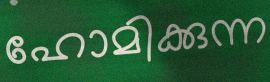
ഹോമിക്കുന്ന